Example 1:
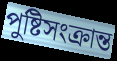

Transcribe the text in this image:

পুষ্টিসংক্রান্ত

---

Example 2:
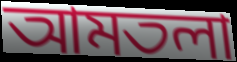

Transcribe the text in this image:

আমতলা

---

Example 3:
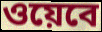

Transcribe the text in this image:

ওয়েবে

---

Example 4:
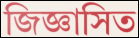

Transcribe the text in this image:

জিজ্ঞাসিত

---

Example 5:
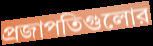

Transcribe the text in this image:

প্রজাপতিগুলোর